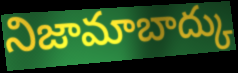
నిజామాబాద్కు